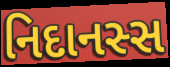
નિદાનસ્સ